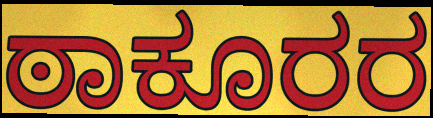
ಠಾಕೂರರ